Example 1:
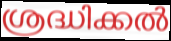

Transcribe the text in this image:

ശ്രദ്ധിക്കൽ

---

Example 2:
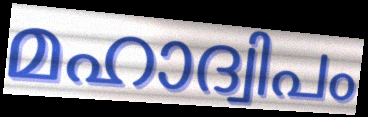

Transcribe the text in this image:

മഹാദ്വിപം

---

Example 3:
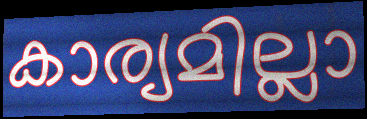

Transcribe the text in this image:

കാര്യമില്ലാ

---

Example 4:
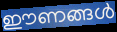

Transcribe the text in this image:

ഈണങ്ങൾ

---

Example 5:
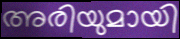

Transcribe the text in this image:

അരിയുമായി